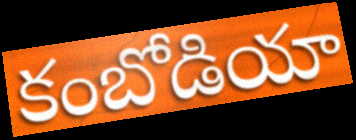
కంబోడియా